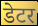
डेटर